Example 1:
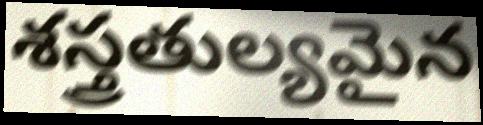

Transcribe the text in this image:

శస్త్రతుల్యమైన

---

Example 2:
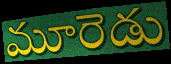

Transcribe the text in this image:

మూరెడు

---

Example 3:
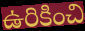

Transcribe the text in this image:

ఉరికించి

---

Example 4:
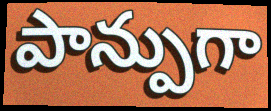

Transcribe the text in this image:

పాన్పుగా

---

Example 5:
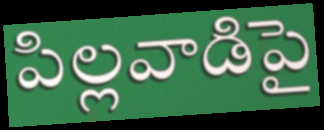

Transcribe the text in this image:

పిల్లవాడిపై